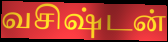
வசிஷ்டன்